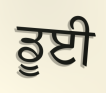
ਡੂਈ